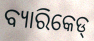
ବ୍ୟାରିକେଡ୍